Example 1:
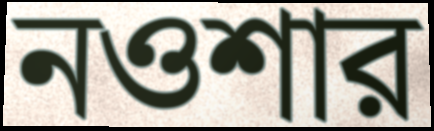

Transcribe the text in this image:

নওশার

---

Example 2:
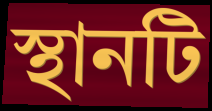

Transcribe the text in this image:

স্থানটি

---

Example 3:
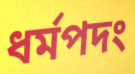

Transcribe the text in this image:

ধর্মপদং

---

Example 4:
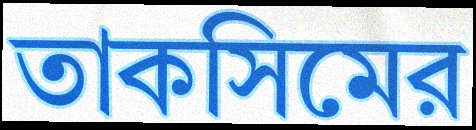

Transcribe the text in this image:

তাকসিমের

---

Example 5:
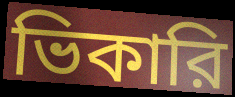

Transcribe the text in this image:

ভিকারি